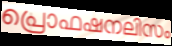
പ്രൊഫഷനലിസം